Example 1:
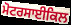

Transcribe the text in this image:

ਮੋਟਰਸਾਈਕਿਲ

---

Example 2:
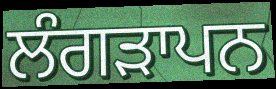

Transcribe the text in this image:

ਲੰਗੜਾਪਨ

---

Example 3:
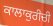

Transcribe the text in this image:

ਕਾਲਾਕੁਰੀਚੀ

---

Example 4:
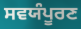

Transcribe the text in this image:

ਸਵਯੰਪੂਰਣ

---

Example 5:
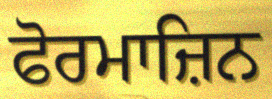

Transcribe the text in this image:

ਫੋਰਮਾਜ਼ਿਨ